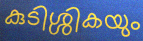
കുടിശ്ശികയും